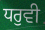
ਧਰੁਵੀ